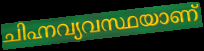
ചിഹ്നവ്യവസ്ഥയാണ്